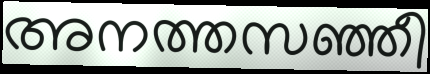
അനത്തസഞ്ഞീ